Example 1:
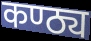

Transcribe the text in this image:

कण्ठ्य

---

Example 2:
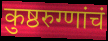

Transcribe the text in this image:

कुष्ठरुग्णांचं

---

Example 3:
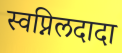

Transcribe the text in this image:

स्वप्निलदादा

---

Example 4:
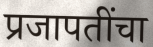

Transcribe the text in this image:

प्रजापतींचा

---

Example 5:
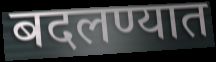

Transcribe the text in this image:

बदलण्यात